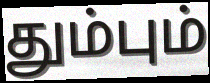
தும்பும்